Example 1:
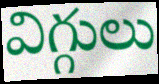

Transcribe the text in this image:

విగ్గులు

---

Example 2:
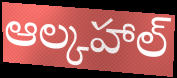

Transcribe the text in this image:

ఆల్కహాల్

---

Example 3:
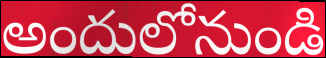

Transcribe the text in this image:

అందులోనుండి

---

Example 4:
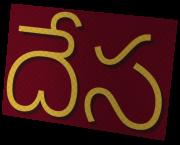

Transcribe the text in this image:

దేస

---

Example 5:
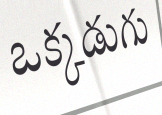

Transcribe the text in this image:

ఒక్కడుగు